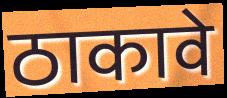
ठाकावे